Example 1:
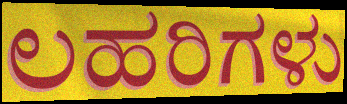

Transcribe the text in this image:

ಲಹರಿಗಳು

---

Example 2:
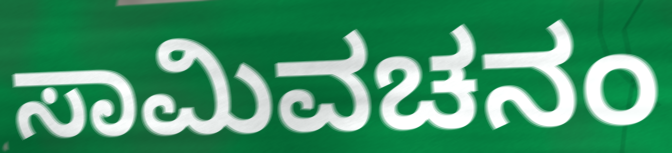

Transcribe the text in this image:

ಸಾಮಿವಚನಂ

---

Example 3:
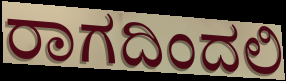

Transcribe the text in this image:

ರಾಗದಿಂದಲಿ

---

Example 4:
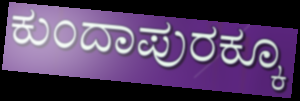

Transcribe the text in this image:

ಕುಂದಾಪುರಕ್ಕೂ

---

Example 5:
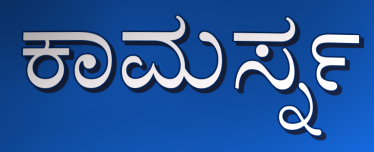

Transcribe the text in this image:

ಕಾಮರ್ಸ್ನ